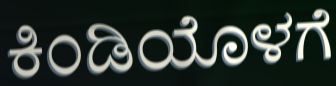
ಕಿಂಡಿಯೊಳಗೆ